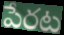
పేరట